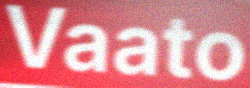
Vaato